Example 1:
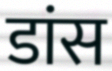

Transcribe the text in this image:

डांस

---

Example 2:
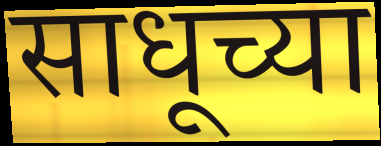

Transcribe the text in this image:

साधूच्या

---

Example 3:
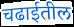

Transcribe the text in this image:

चढाईतील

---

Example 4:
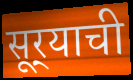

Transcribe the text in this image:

सूर्याची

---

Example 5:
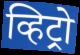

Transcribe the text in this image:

व्हिट्रो